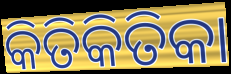
କିତିକିତିକା